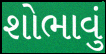
શોભાવું